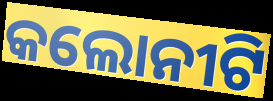
କଲୋନୀଟି